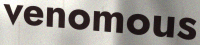
venomous